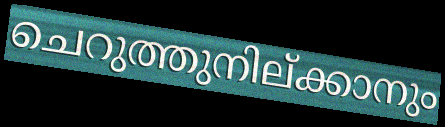
ചെറുത്തുനില്ക്കാനും